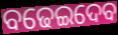
ବଢେଇଦେବ